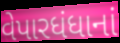
વેપારધંધાનાં